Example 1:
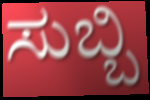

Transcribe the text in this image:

ಸುಬ್ಬಿ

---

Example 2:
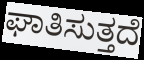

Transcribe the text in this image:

ಘಾತಿಸುತ್ತದೆ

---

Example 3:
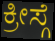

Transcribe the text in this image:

ಕ್ರೀಸ್ಗೆ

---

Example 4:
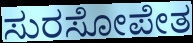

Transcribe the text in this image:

ಸುರಸೋಪೇತ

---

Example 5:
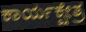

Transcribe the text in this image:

ಕಾರ್ಯಕ್ಷೇತ್ರ